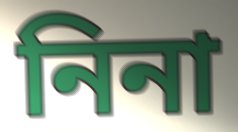
নিনা